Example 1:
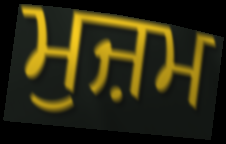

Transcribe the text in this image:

ਮੁਜ਼ਮ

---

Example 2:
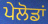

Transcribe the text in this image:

ਪੇਲੋਡਾਂ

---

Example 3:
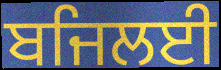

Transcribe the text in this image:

ਬਜਿਲਈ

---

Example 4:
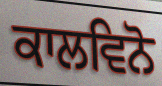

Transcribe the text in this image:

ਕਾਲਵਿਨੋ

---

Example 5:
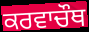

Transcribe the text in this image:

ਕਰਵਾਚੌਥ